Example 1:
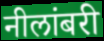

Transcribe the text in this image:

नीलांबरी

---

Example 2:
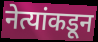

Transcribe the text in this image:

नेत्यांकडून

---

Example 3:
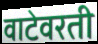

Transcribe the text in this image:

वाटेवरती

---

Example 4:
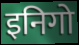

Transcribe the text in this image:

इनिगो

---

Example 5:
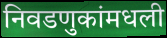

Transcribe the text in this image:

निवडणुकांमधली